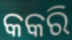
କକରି